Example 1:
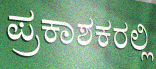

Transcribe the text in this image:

ಪ್ರಕಾಶಕರಲ್ಲಿ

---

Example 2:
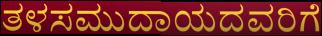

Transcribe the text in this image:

ತಳಸಮುದಾಯದವರಿಗೆ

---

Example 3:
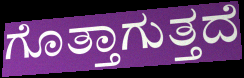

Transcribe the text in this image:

ಗೊತ್ತಾಗುತ್ತದೆ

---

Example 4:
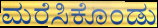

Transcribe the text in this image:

ಮರೆಸಿಕೊಂಡು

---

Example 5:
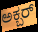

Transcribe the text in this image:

ಅಕ್ಬರ್